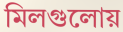
মিলগুলোয়